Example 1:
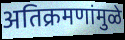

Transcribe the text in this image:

अतिक्रमणांमुळे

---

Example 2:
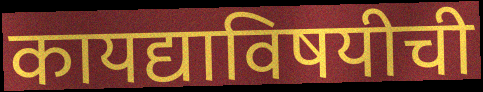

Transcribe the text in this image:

कायद्याविषयीची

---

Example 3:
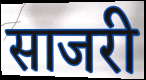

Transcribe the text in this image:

साजरी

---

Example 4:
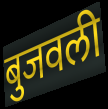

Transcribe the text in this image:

बुजवली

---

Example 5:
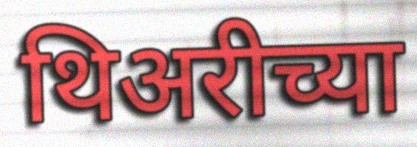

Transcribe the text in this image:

थिअरीच्या